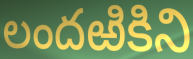
లందఱికిని